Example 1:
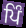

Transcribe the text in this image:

ਪਿੰ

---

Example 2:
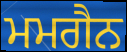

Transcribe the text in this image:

ਮਮਗੈਨ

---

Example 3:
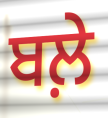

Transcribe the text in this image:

ਬਲ਼ੇ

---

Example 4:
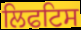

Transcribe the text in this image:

ਲਿਫਟਿਸ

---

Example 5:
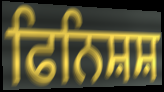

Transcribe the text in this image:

ਫਿਨਿਸ਼ਸ਼